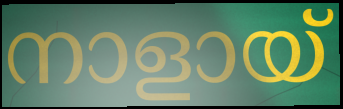
നാളായ്